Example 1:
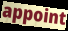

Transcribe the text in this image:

appoint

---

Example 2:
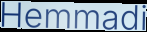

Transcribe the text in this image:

Hemmadi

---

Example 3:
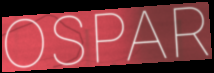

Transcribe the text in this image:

OSPAR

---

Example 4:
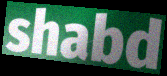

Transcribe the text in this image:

shabd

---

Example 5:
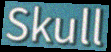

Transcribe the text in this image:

Skull